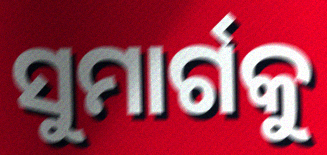
ସୁମାର୍ଗକୁ